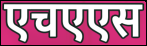
एचएएस